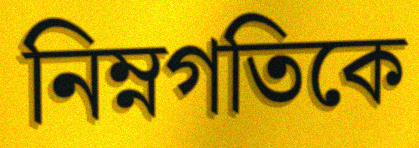
নিম্নগতিকে